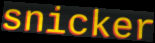
snicker